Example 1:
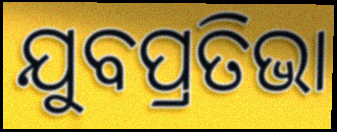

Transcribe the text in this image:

ଯୁବପ୍ରତିଭା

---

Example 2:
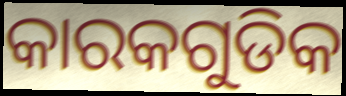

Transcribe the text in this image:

କାରକଗୁଡିକ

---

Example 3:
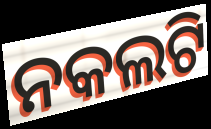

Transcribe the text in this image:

ନକଲଟି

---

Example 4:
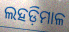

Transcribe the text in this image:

ଲହଡ଼ିମାଳ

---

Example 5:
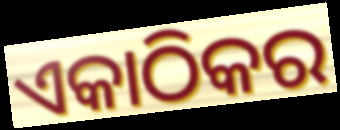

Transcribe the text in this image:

ଏକାଠିକର